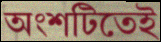
অংশটিতেই